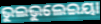
ଭୁଲଭୁଲେଇୟା